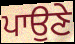
ਪਾਉਣੇ